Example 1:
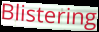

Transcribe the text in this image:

Blistering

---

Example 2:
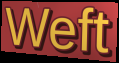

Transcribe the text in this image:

Weft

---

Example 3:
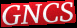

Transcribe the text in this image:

GNCS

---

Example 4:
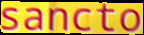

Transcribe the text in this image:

sancto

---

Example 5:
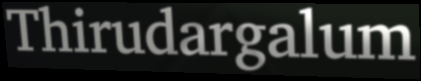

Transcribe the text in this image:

Thirudargalum